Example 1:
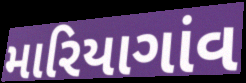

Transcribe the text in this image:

મારિયાગાંવ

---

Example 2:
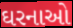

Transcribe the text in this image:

ઘરનાઓ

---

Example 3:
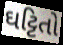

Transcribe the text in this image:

ઘટ્ટિતો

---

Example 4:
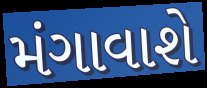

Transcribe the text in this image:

મંગાવાશે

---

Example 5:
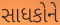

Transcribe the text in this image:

સાધકોને